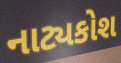
નાટ્યકોશ